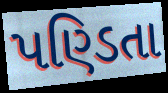
પણ્ડિતા